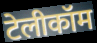
टेलीकॉम